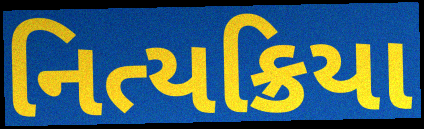
નિત્યક્રિયા